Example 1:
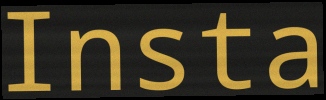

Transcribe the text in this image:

Insta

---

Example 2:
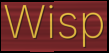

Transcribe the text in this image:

Wisp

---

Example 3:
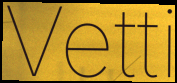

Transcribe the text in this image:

Vetti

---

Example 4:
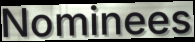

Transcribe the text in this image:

Nominees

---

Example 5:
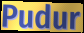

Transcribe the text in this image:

Pudur